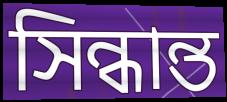
সিন্ধান্ত